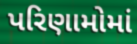
પરિણામોમાં